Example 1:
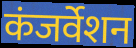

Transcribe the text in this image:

कंजर्वेशन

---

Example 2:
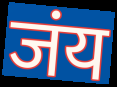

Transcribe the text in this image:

जंय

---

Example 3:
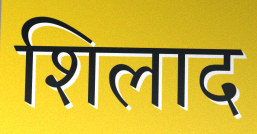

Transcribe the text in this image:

शिलाद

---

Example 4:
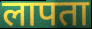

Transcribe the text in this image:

लापता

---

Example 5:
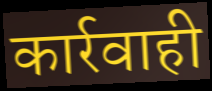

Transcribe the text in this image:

कार्रवाही